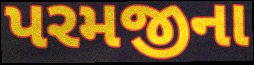
પરમજીના